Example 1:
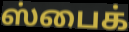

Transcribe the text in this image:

ஸ்பைக்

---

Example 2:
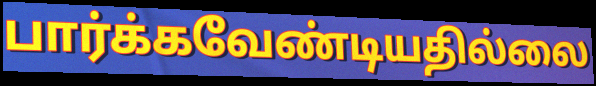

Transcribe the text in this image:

பார்க்கவேண்டியதில்லை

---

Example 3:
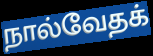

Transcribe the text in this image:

நால்வேதக்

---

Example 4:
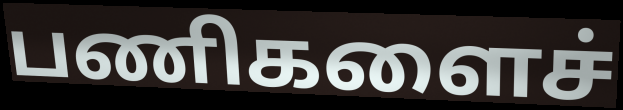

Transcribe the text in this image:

பணிகளைச்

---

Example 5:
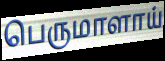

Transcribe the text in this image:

பெருமாளாய்